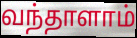
வந்தாளாம்